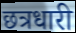
छत्रधारी